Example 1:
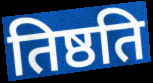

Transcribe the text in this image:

तिष्ठति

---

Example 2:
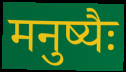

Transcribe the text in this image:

मनुष्यैः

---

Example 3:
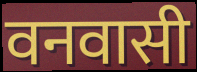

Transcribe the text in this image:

वनवासी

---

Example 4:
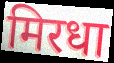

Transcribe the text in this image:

मिरधा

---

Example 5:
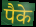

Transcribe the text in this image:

पैके